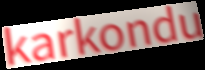
karkondu